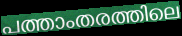
പത്താംതരത്തിലെ